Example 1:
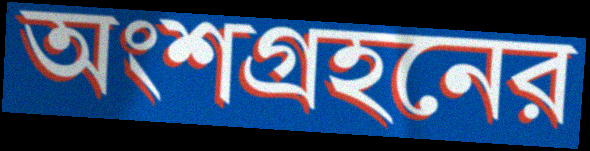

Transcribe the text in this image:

অংশগ্রহনের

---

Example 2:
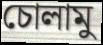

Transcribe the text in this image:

চোলামু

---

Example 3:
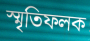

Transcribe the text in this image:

স্মৃতিফলক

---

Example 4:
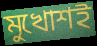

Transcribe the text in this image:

মুখোশই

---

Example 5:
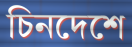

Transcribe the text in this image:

চিনদেশে